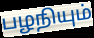
பழநியும்